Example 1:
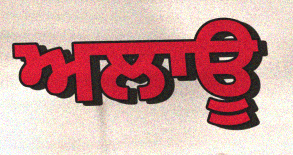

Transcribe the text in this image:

ਅਲਾਊ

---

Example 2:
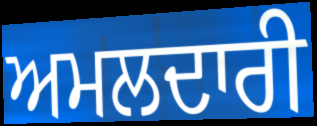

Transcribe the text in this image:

ਅਮਲਦਾਰੀ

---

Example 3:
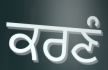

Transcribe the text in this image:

ਕਰਣੰ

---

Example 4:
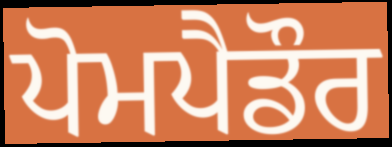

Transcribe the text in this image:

ਪੋਮਪੈਡੌਰ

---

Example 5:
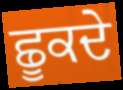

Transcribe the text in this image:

ਛੂਕਦੇ